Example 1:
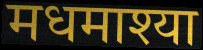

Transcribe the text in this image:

मधमाश्‍या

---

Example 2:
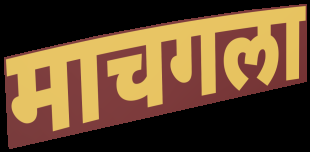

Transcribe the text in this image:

माचगला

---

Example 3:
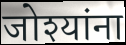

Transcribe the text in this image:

जोश्यांना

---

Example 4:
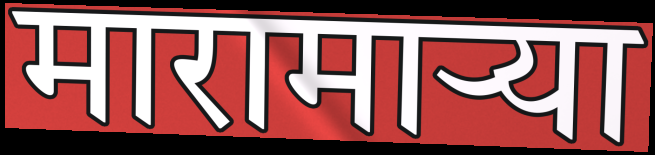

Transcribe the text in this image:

मारामार्‍या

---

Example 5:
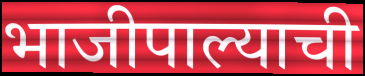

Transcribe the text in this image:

भाजीपाल्याची